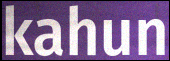
kahun